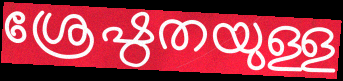
ശ്രേഷ്ഠതയുള്ള